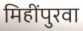
मिहींपुरवा